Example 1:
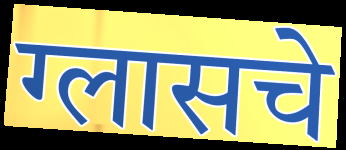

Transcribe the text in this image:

ग्लासचे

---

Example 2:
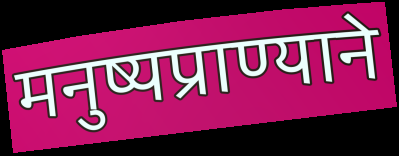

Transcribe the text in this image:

मनुष्यप्राण्याने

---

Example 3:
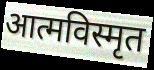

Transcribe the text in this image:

आत्मविस्मृत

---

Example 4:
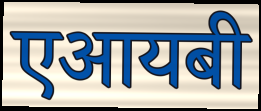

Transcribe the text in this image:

एआयबी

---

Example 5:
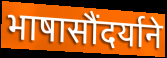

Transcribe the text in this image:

भाषासौंदर्याने